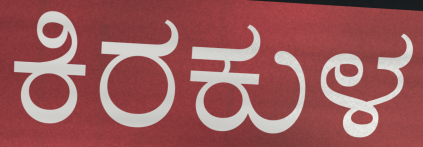
ಕಿರಕುಳ